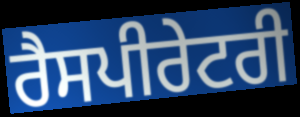
ਰੈਸਪੀਰੇਟਰੀ